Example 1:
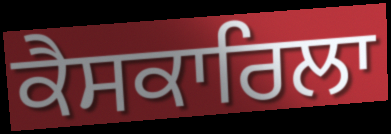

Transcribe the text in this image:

ਕੈਸਕਾਰਿਲਾ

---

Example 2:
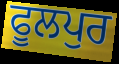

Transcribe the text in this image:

ਫੂਲਪੁਰ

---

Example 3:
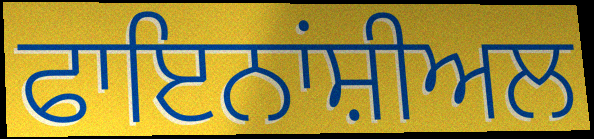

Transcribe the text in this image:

ਫਾਇਨਾਂਸ਼ੀਅਲ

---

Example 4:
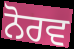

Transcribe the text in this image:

ਨੋਰਵ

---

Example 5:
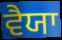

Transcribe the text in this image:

ਵੈਯਾ